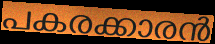
പകരക്കാരൻ